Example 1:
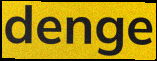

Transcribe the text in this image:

denge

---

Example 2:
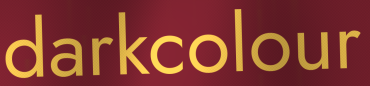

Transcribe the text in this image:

darkcolour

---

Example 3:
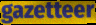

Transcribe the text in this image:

gazetteer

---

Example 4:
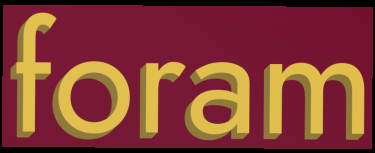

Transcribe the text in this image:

foram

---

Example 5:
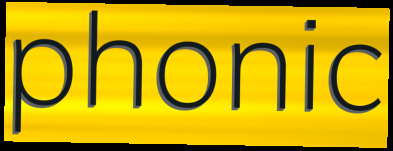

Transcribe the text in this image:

phonic